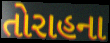
તોરાહના